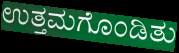
ಉತ್ತಮಗೊಂಡಿತು